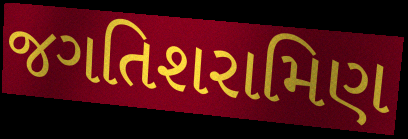
જગતિશરામિણ